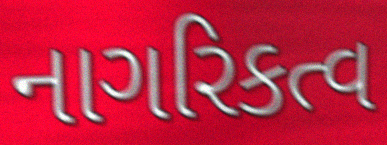
નાગરિકત્વ